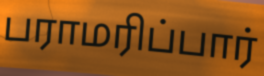
பராமரிப்பார்